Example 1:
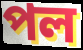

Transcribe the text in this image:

পল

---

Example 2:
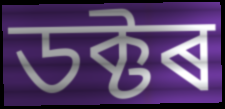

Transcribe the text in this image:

ডক্টৰ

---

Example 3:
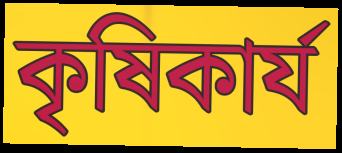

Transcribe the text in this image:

কৃষিকাৰ্য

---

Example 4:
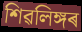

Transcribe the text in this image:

শিৱলিঙ্গৰ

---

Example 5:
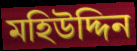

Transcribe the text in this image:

মহিউদ্দিন